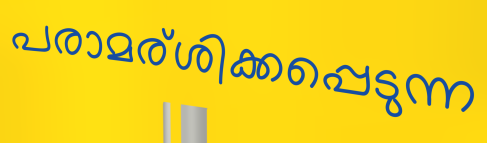
പരാമര്ശിക്കപ്പെടുന്ന